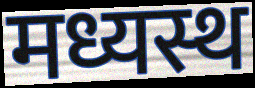
मध्यस्थ